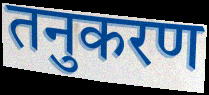
तनुकरण